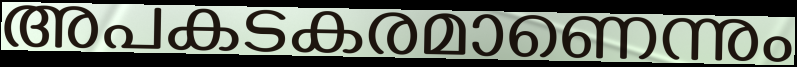
അപകടകരമാണെന്നും